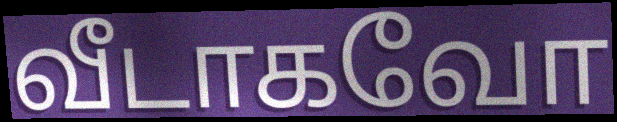
வீடாகவோ